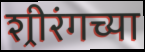
श्रीरंगच्या